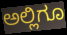
ಅಲ್ಲಿಗೂ